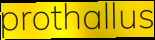
prothallus